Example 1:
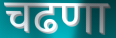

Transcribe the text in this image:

चढणा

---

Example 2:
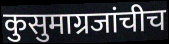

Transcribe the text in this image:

कुसुमाग्रजांचीच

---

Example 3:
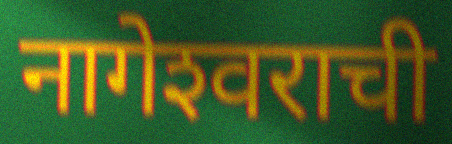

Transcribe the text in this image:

नागेश्‍वराची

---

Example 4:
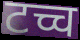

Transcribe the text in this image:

टच्च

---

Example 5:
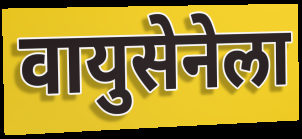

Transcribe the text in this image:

वायुसेनेला